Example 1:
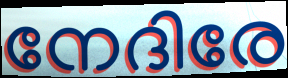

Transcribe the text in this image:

നേദിരേ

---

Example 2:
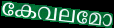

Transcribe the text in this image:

കേവലമോ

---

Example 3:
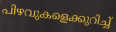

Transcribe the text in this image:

പിഴവുകളെക്കുറിച്ച്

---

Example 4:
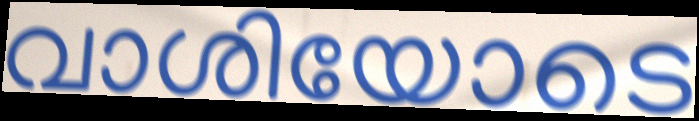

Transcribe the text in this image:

വാശിയോടെ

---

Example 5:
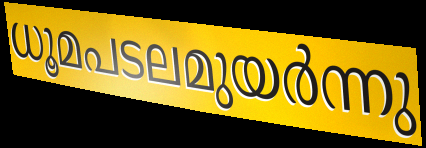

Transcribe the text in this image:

ധൂമപടലമുയർന്നു